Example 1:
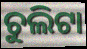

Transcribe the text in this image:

ଚୁଲିଟା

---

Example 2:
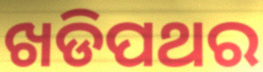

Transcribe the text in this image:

ଖଡିପଥର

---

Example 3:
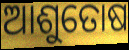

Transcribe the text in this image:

ଆଶୁତୋଷ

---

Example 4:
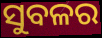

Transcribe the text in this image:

ସୁବଳର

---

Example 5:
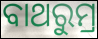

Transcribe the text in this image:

ବାଥରୁମ୍ର